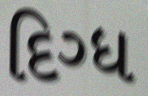
દિગ્ધ